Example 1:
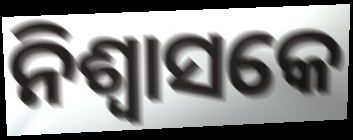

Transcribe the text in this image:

ନିଶ୍ଵାସକେ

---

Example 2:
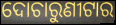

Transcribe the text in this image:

ଦୋଚାରୁଣୀଟାର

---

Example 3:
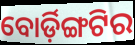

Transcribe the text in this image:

ବୋର୍ଡ଼ିଙ୍ଗଟିର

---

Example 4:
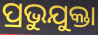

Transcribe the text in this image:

ପ୍ରଭୁଯୁକ୍ତା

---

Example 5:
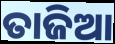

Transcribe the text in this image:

ତାଜିଆ